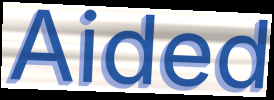
Aided